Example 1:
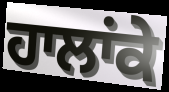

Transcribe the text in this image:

ਹਾਲਾਂਕੇ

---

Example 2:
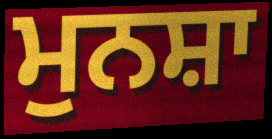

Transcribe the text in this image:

ਮੁਨਸ਼ਾ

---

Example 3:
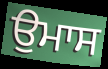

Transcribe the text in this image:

ਉਮਾਸ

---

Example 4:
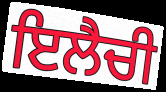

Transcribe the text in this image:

ਇਲੈਚੀ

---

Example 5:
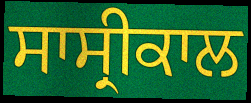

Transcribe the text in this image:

ਸਾਸ੍ਰੀਕਾਲ